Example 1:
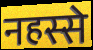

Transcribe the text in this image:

नहस्से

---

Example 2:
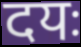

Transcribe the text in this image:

दयः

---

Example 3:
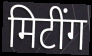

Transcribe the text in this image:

मिटींग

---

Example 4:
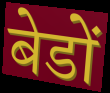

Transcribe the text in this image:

बेडों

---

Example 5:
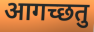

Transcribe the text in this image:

आगच्छतु